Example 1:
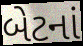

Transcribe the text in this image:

બેટનાં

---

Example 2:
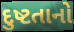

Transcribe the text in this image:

દુષ્ટતાનો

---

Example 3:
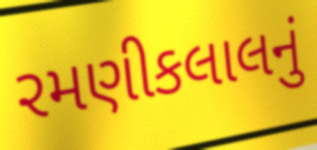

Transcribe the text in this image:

રમણીકલાલનું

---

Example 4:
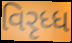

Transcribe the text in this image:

વિરૃધ્ધ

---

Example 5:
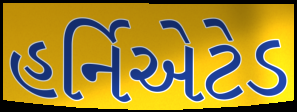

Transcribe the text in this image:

હર્નિએટેડ